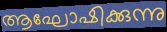
ആഘോഷിക്കുന്നു